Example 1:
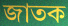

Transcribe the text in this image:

জাতক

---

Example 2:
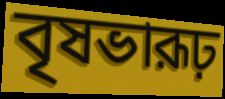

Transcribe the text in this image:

বৃষভারূঢ়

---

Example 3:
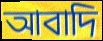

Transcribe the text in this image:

আবাদি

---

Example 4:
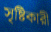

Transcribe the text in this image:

সৃষ্টিকারী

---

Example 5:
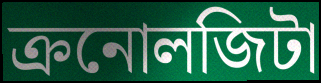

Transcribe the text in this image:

ক্রনোলজিটা